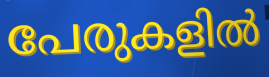
പേരുകളിൽ